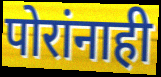
पोरांनाही